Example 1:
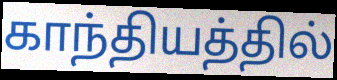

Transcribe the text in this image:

காந்தியத்தில்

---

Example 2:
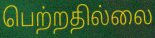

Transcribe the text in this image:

பெற்றதில்லை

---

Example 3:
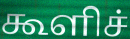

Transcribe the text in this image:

கூளிச்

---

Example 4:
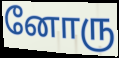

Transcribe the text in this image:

னோரு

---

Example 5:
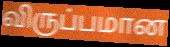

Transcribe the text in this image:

விருப்பமான